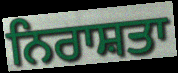
ਨਿਰਾਸ਼ਤਾ